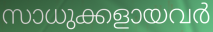
സാധുക്കളായവർ